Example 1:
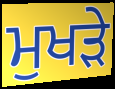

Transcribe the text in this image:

ਮੁਖੜੇ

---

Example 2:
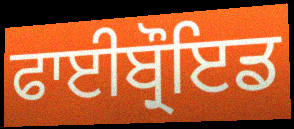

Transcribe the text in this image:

ਫਾਈਬ੍ਰੌਇਡ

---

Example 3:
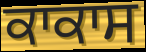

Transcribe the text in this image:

ਕਾਕਾਸ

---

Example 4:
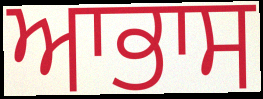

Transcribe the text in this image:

ਆਭਾਸ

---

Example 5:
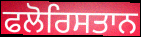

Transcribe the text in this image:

ਫਲੋਰਿਸਤਾਨ